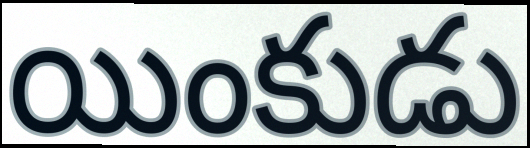
యింకుడు